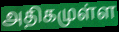
அதிகமுள்ள